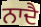
ਨਾਦੈ